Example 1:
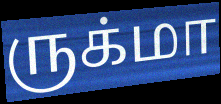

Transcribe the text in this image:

ருக்மா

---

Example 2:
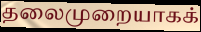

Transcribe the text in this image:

தலைமுறையாகக்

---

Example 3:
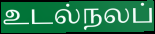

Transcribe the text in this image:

உடல்நலப்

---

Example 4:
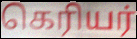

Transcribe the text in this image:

கெரியர்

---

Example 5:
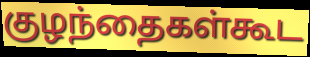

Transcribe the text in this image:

குழந்தைகள்கூட